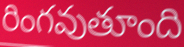
రింగవుతూంది